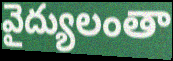
వైద్యులంతా